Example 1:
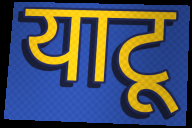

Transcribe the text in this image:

याटू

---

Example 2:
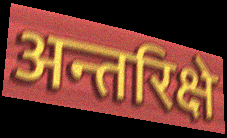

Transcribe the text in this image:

अन्तरिक्षे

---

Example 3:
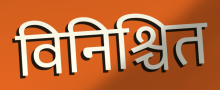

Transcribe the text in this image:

विनिश्चित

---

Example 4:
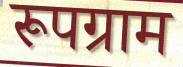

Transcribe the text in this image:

रूपग्राम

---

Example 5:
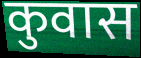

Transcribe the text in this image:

कुवास